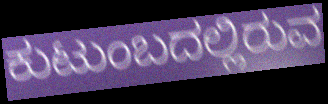
ಕುಟುಂಬದಲ್ಲಿರುವ